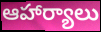
ఆహార్యాలు